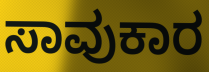
ಸಾವುಕಾರ